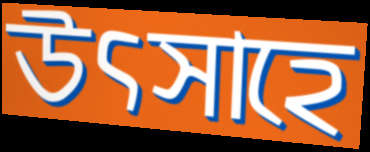
উত্‍সাহে